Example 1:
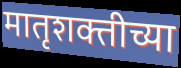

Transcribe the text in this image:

मातृशक्तीच्या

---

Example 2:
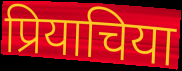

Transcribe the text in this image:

प्रियाचिया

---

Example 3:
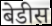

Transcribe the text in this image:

बेडीस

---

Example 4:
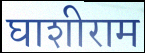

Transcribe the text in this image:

घाशीराम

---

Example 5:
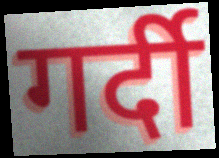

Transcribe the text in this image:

गर्दी